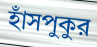
হাঁসপুকুর